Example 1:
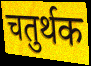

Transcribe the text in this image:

चतुर्थक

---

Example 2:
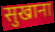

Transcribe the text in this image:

सुखाना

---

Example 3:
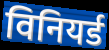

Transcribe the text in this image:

विनियर्ड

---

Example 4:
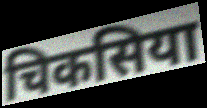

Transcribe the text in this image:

चिकसिया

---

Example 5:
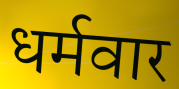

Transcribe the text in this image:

धर्मवार